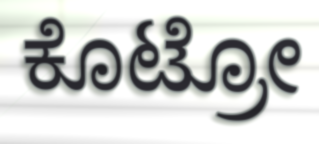
ಕೊಟ್ರೋ